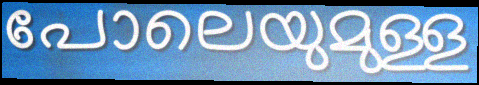
പോലെയുമുള്ള